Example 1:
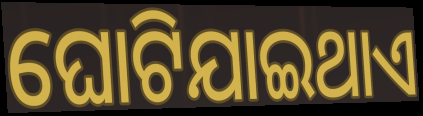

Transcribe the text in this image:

ଘୋଟିଯାଇଥାଏ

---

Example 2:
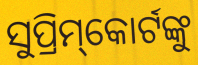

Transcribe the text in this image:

ସୁପ୍ରିମ୍‌କୋର୍ଟଙ୍କୁ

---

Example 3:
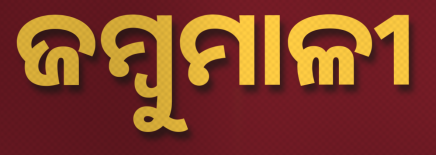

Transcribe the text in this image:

ଜମ୍ବୁମାଳୀ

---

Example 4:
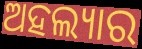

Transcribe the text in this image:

ଅହଲ୍ୟାର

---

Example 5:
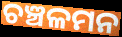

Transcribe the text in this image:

ଚଞ୍ଚଳମନ